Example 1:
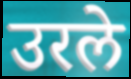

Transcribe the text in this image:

उरले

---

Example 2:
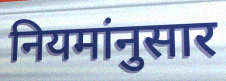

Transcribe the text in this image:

नियमांनुसार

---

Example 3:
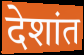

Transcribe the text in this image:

देशांत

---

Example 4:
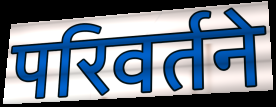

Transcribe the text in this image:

परिवर्तने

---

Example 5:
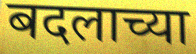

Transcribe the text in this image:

बदलाच्या